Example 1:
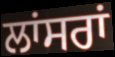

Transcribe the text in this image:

ਲਾਂਸਰਾਂ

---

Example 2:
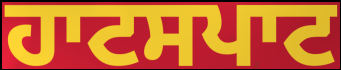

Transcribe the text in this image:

ਹਾਟਸਪਾਟ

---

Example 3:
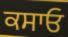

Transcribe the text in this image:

ਕਸਾਓ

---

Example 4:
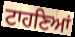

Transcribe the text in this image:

ਟਾਹਣਿਆਂ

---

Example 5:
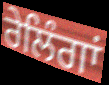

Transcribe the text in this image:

ਰੇਲਿੰਗਾਂ